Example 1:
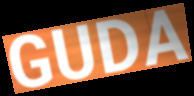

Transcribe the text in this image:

GUDA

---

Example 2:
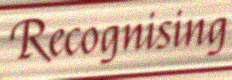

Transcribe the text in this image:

Recognising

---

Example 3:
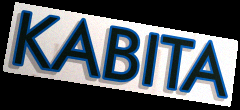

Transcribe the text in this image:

KABITA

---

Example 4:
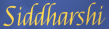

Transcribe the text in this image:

Siddharshi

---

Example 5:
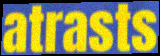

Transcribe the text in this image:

atrasts